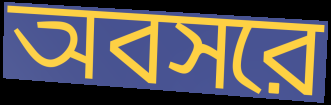
অবসরে